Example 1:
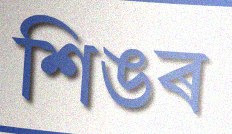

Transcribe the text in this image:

শিঙৰ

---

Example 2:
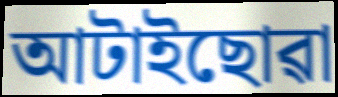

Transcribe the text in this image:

আটাইছোৱা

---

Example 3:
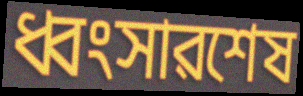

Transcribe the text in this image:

ধ্বংসাৱশেষ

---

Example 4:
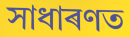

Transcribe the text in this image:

সাধাৰণত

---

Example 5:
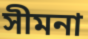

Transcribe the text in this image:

সীমনা